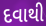
દવાથી